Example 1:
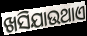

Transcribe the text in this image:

ଖସିଯାଉଥାଏ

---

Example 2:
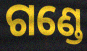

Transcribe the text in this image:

ଗଣ୍ଡେ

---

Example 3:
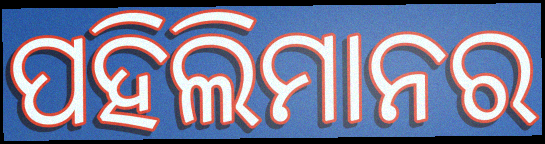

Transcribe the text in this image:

ପହିଲିମାନର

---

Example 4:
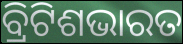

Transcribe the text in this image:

ବ୍ରିଟିଶଭାରତ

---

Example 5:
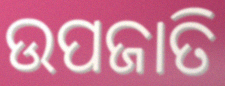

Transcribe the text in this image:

ଉପଜାତି